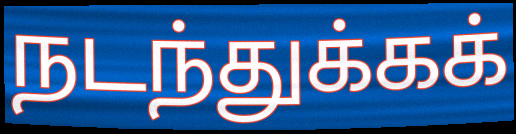
நடந்துக்கக்